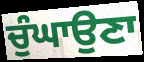
ਚੁੰਘਾਉਣਾ